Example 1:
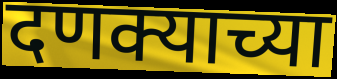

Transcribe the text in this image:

दणक्याच्या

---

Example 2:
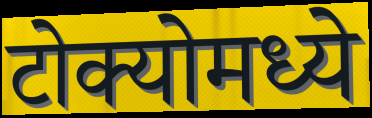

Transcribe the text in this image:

टोक्योमध्ये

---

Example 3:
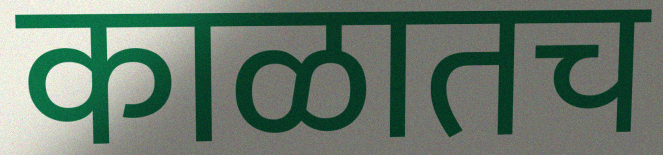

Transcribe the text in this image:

काळातच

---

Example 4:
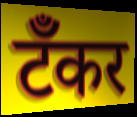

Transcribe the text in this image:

टॅँकर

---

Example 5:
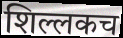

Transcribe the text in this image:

शिल्लकच